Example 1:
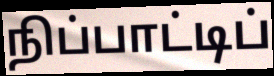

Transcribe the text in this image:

நிப்பாட்டிப்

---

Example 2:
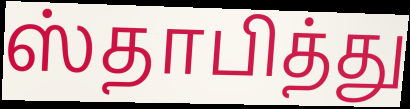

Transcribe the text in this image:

ஸ்தாபித்து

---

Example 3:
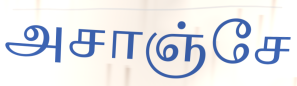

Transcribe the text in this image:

அசாஞ்சே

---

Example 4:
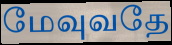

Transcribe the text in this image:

மேவுவதே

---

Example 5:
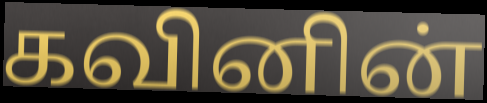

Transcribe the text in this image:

கவினின்